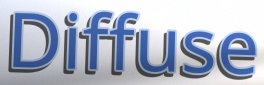
Diffuse